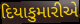
દિયાકુમારીએ